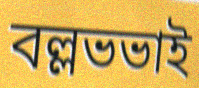
বল্লভভাই